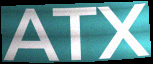
ATX